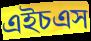
এইচএস